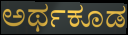
ಅರ್ಥಕೂಡ